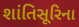
શાંતિસૂરિના